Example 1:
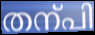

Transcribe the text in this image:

തന്പി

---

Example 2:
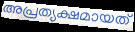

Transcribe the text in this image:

അപ്രത്യക്ഷമായത്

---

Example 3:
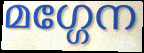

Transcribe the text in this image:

മഗ്ഗേന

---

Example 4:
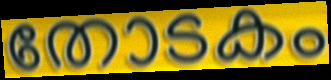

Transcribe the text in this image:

തോടകം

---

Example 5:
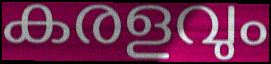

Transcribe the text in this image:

കരളവും